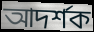
আদৰ্শক